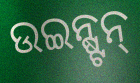
ଉଇନ୍ଷ୍ଟନ୍